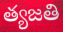
త్యజతి